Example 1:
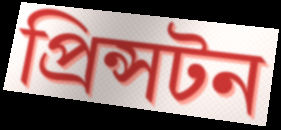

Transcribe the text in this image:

প্ৰিন্সটন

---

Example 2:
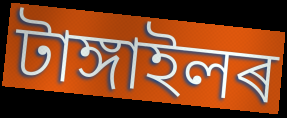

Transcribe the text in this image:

টাঙ্গাইলৰ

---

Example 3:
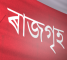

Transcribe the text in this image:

ৰাজগৃহ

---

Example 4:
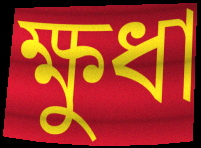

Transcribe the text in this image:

ক্ষুধা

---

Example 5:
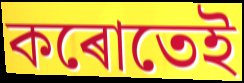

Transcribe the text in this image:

কৰোতেই